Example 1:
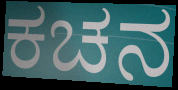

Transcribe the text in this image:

ಕಚನ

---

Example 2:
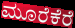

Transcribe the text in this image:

ಮೂರೆಕೆರೆ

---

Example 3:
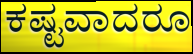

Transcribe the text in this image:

ಕಷ್ಟವಾದರೂ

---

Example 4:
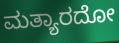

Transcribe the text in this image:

ಮತ್ಯಾರದೋ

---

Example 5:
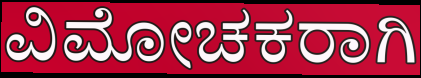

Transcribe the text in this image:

ವಿಮೋಚಕರಾಗಿ